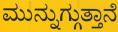
ಮುನ್ನುಗ್ಗುತ್ತಾನೆ